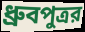
ধ্রুবপুত্রর